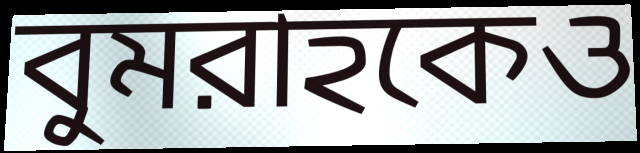
বুমরাহকেও